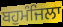
ਬਹੁਮੰਜਿਲਾ